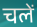
चलें